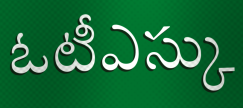
ఓటీఎస్కు